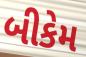
બીકેમ